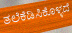
ತಲೆಕೆಡಿಸಿಕೊಳ್ಳದೆ